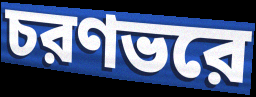
চরণভরে